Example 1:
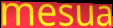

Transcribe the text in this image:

mesua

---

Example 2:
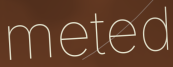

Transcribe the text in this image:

meted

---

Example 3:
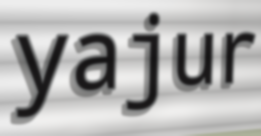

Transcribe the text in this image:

yajur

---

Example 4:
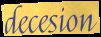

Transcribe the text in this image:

decesion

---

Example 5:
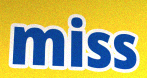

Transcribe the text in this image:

miss